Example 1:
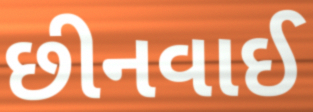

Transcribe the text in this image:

છીનવાઈ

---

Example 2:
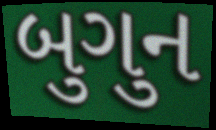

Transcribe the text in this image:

બુગુન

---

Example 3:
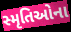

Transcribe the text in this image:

સ્મૃતિઓના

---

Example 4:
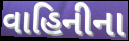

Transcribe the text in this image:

વાહિનીના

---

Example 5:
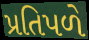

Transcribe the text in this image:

પ્રતિપળે